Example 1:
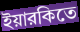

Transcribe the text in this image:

ইয়ারকিতে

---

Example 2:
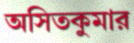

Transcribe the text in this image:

অসিতকুমার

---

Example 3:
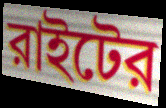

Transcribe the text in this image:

রাইটের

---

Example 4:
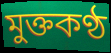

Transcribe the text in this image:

মুক্তকণ্ঠ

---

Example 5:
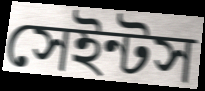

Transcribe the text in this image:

সেইন্টস